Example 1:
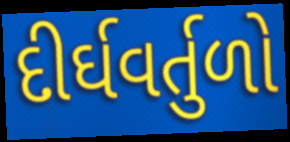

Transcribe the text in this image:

દીર્ઘવર્તુળો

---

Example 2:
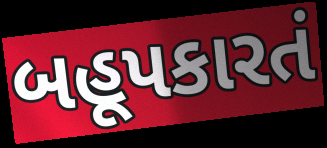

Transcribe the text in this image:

બહૂપકારતં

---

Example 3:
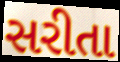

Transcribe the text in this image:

સરીતા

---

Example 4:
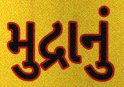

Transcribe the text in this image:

મુદ્રાનું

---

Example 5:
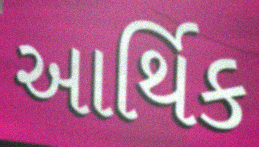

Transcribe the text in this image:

આર્થિક